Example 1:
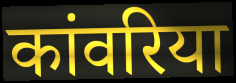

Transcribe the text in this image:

कांवरिया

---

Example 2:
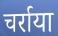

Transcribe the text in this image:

चर्राया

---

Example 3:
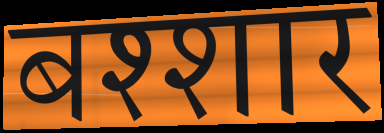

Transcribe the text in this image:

बश्शार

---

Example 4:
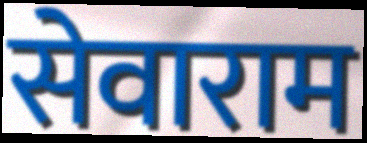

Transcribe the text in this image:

सेवाराम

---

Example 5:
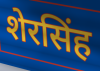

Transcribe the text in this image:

शेरसिंह